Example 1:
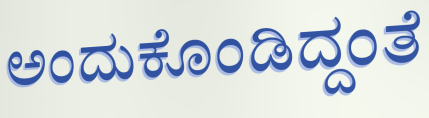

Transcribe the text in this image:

ಅಂದುಕೊಂಡಿದ್ದಂತೆ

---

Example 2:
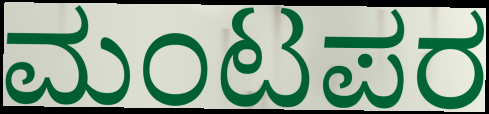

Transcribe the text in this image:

ಮಂಟಪರ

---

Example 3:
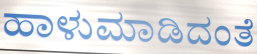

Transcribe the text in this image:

ಹಾಳುಮಾಡಿದಂತೆ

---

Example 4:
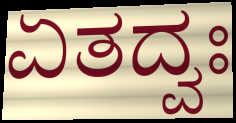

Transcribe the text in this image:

ಏತದ್ವಃ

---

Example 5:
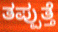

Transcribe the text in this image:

ತಪ್ಪುತ್ತೆ